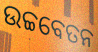
ଉଚ୍ଚବେତନ